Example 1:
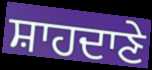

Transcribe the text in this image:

ਸ਼ਾਹਦਾਣੇ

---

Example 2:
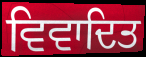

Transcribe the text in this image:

ਵਿਵਾਦਿਤ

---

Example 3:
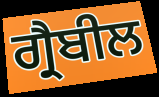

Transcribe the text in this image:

ਗ੍ਰੈਬੀਲ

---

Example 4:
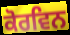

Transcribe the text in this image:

ਕੋਰਵਿਨ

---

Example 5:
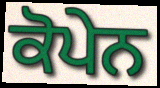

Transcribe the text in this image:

ਕੋਪੇਨ